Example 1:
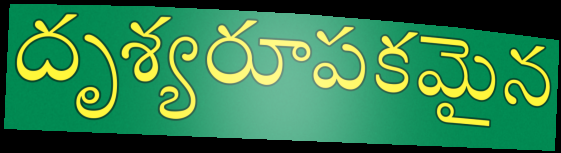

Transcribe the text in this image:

దృశ్యరూపకమైన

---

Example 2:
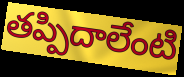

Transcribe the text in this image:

తప్పిదాలేంటి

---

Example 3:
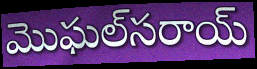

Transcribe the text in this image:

మొఘల్‌సరాయ్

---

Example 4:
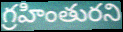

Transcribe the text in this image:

గ్రహింతురని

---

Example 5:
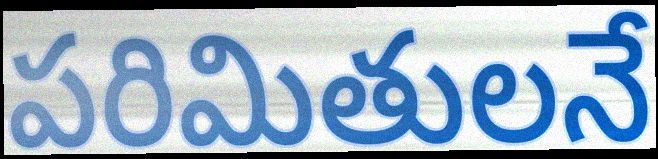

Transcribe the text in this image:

పరిమితులనే